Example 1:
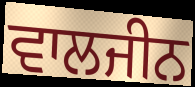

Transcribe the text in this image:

ਵਾਲਜੀਨ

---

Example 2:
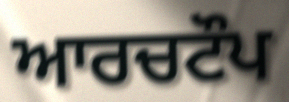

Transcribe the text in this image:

ਆਰਚਟੌਪ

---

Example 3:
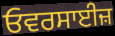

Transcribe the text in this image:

ਓਵਰਸਾਈਜ਼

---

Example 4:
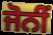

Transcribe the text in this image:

ਜੋਨੀਂ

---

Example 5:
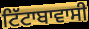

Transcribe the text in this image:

ਟਿੱਟਾਬਾਵਾਸੀ